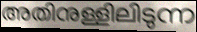
അതിനുള്ളിലിടുന്ന